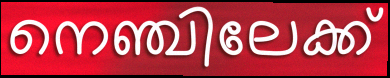
നെഞ്ചിലേക്ക്